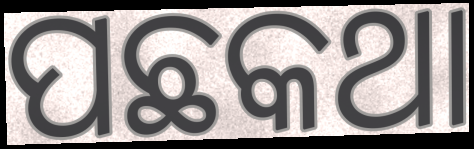
ପଛକଥା